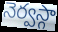
నెర్వస్గా